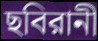
ছবিরানী